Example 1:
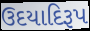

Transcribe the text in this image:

ઉદયાદિરૂપ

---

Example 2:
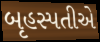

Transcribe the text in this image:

બૃહસ્પતીએ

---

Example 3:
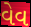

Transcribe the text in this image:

વેવ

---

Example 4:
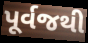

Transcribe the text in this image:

પૂર્વજથી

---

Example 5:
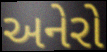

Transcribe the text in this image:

અનેરો